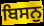
ਬਿਸਨੁ